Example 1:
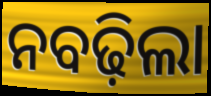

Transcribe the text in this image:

ନବଢ଼ିଲା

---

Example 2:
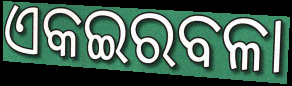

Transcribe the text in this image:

ଏକଇରବଳା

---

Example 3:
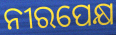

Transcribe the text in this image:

ନୀରପେକ୍ଷ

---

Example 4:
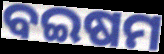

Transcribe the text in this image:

ବଇଷମ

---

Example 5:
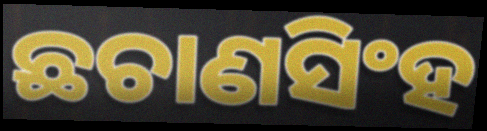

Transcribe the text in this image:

ଛଚାଣସିଂହ